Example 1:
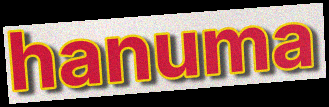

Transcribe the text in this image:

hanuma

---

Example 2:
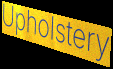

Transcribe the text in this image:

Upholstery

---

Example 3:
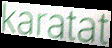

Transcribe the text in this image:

karatat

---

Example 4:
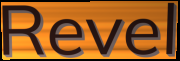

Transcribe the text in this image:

Revel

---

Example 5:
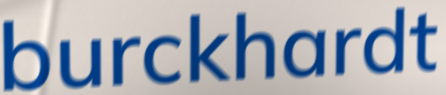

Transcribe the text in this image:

burckhardt